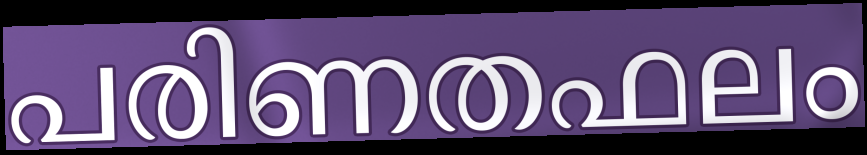
പരിണതഫലം